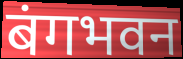
बंगभवन